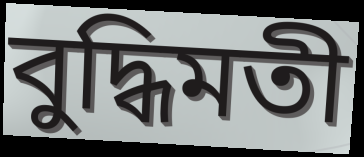
বুদ্ধিমতী